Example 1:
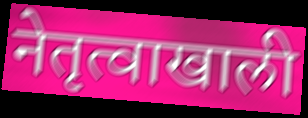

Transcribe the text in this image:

नेतृत्वाखाली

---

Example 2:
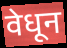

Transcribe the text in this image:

वेधून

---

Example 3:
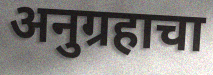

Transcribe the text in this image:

अनुग्रहाचा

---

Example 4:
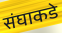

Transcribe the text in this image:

संघाकडे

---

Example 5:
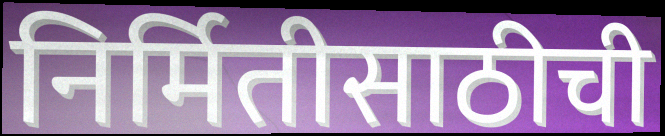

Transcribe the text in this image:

निर्मितीसाठीची